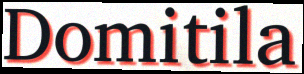
Domitila